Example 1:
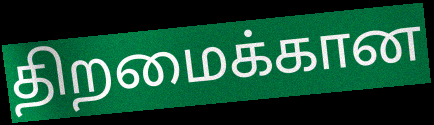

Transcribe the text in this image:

திறமைக்கான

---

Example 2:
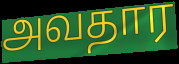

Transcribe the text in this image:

அவதார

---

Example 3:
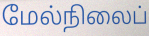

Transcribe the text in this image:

மேல்நிலைப்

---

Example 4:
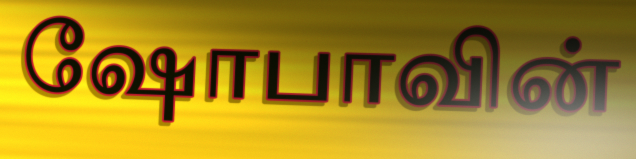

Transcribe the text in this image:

ஷோபாவின்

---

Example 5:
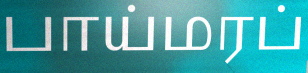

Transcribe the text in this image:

பாய்மரப்